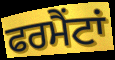
ਫਰਮੈਂਟਾਂ